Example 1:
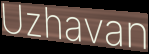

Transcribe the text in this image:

Uzhavan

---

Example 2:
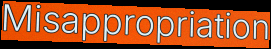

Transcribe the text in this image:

Misappropriation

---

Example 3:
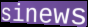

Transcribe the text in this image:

sinews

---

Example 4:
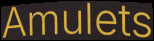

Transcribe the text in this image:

Amulets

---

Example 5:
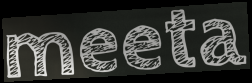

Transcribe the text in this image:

meeta